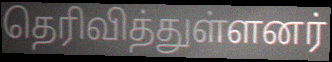
தெரிவித்துள்ளனர்